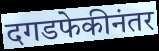
दगडफेकीनंतर